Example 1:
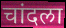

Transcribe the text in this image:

चांदला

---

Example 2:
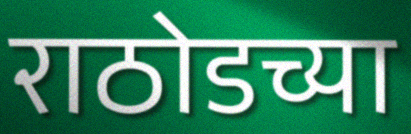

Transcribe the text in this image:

राठोडच्या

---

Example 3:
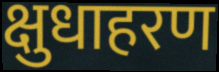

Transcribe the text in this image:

क्षुधाहरण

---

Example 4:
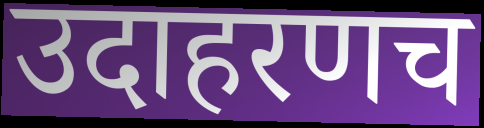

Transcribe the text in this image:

उदाहरणच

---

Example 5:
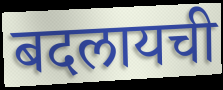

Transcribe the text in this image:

बदलायची